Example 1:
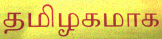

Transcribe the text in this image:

தமிழகமாக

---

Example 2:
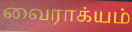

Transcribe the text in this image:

வைராக்யம்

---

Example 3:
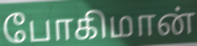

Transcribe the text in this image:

போகிமான்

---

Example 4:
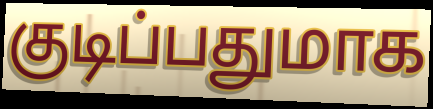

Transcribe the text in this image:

குடிப்பதுமாக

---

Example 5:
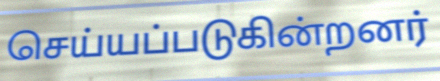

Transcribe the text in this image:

செய்யப்படுகின்றனர்